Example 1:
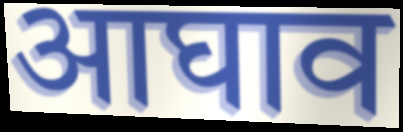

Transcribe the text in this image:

आघाव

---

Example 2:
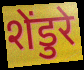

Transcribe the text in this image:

शेंडुरे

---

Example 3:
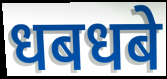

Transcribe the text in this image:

धबधबे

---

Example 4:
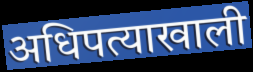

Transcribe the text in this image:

अधिपत्याखाली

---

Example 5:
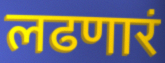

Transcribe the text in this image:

लढणारं